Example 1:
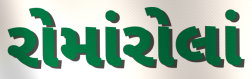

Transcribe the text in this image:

રોમાંરોલાં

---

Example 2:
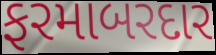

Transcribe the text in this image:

ફરમાબરદાર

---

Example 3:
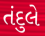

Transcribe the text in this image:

તંદુલે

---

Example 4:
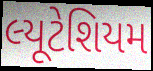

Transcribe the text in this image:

લ્યૂટેશિયમ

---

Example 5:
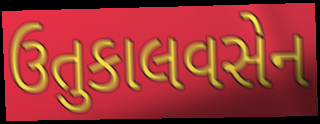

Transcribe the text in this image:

ઉતુકાલવસેન